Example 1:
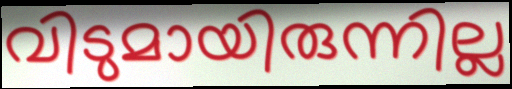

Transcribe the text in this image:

വിടുമായിരുന്നില്ല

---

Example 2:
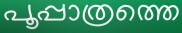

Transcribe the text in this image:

പൂപ്പാത്രത്തെ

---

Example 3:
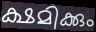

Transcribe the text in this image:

ക്ഷമിക്കും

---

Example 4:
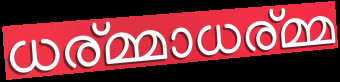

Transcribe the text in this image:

ധര്മ്മാധര്മ്മ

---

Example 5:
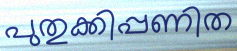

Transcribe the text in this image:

പുതുക്കിപ്പണിത